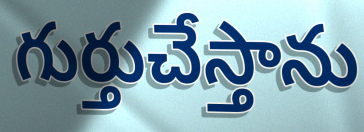
గుర్తుచేస్తాను